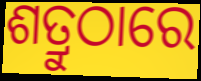
ଶତ୍ରୁଠାରେ